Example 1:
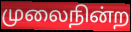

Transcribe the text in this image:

முலைநின்ற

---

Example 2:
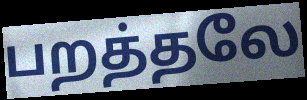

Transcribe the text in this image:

பறத்தலே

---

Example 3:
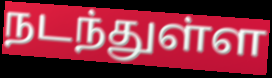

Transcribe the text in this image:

நடந்துள்ள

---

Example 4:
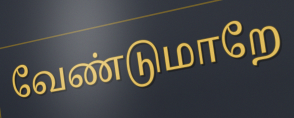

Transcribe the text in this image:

வேண்டுமாறே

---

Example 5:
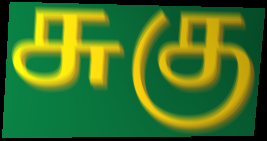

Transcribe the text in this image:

சுகு